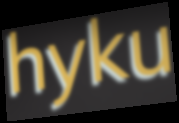
hyku